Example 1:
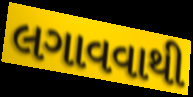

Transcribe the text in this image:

લગાવવાથી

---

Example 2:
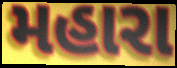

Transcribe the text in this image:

મહારા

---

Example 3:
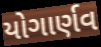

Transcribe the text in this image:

યોગાર્ણવ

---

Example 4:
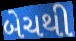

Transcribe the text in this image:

બેચથી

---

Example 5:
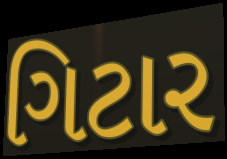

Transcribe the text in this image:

ગિટાર